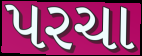
પરચા